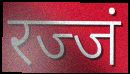
रज्जं